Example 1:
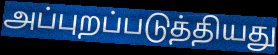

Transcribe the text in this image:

அப்புறப்படுத்தியது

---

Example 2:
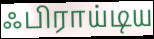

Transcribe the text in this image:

ஃபிராய்டிய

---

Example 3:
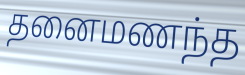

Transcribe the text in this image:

தனைமணந்த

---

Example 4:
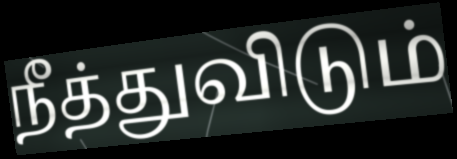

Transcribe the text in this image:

நீத்துவிடும்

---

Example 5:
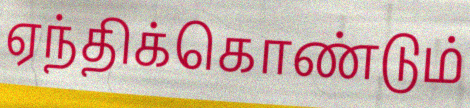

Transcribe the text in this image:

ஏந்திக்கொண்டும்